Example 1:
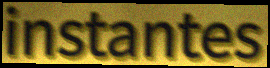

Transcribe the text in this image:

instantes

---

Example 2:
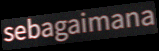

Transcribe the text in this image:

sebagaimana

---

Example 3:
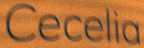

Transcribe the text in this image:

Cecelia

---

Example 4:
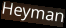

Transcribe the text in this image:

Heyman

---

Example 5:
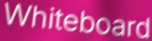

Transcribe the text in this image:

Whiteboard